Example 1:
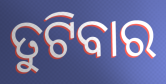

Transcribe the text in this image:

ତୁଟିବାର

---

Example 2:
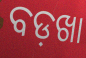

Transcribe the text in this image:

ବଡ଼ଖା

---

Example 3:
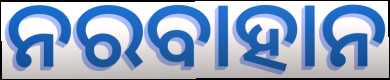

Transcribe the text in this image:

ନରବାହାନ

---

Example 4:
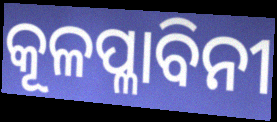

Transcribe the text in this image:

କୂଳପ୍ଳାବିନୀ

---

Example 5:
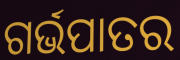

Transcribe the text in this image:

ଗର୍ଭପାତର